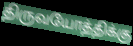
திருவயோத்திக்கு